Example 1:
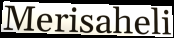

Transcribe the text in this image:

Merisaheli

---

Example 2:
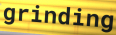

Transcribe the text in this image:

grinding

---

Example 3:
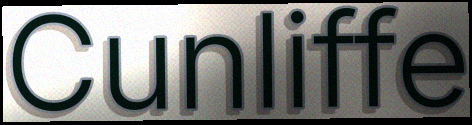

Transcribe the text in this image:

Cunliffe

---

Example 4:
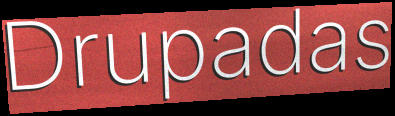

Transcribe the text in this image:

Drupadas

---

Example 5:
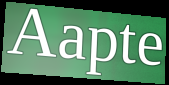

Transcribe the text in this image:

Aapte